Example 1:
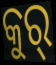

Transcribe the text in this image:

କୁର୍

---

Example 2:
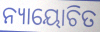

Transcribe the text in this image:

ନ୍ୟାୟୋଚିତ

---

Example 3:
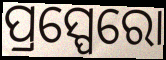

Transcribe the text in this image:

ପ୍ରସ୍ପେରୋ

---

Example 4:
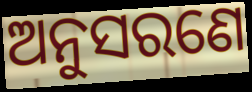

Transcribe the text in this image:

ଅନୁସରଣେ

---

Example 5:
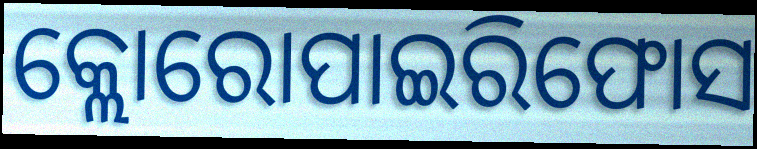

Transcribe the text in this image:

କ୍ଲୋରୋପାଇରିଫୋସ